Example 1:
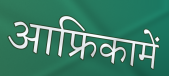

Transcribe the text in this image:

आफ्रिकामें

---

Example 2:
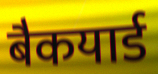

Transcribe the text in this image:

बैकयार्ड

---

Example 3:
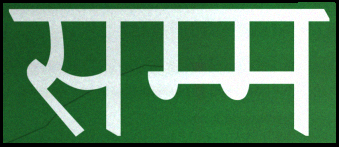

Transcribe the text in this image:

सम्म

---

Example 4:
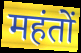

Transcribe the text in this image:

महंतों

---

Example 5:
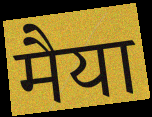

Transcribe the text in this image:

मैया